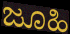
ಜೂಹಿ